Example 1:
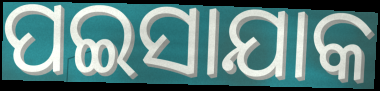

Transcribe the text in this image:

ପଇସାଯାକ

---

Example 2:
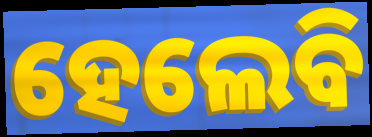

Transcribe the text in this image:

ହେଲେବି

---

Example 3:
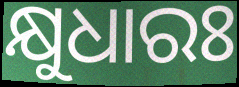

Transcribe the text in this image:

କ୍ଷୁଧାରଃ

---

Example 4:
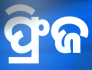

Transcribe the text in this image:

ଫ୍ରିଜ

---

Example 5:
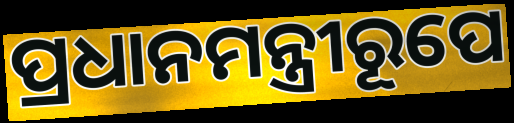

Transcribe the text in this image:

ପ୍ରଧାନମନ୍ତ୍ରୀରୂପେ